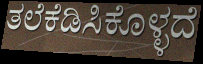
ತಲೆಕೆಡಿಸಿಕೊಳ್ಳದೆ